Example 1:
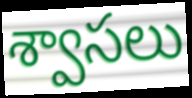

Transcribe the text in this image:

శ్వాసలు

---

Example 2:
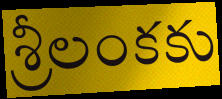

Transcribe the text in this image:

శ్రీలంకకు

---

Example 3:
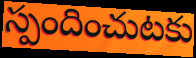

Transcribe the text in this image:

స్పందించుటకు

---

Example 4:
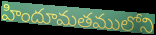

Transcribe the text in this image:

హిందూమతములోని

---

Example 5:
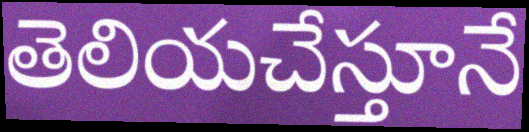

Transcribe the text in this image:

తెలియచేస్తూనే